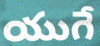
యుగే